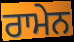
ਰਾਮੇਨ